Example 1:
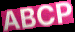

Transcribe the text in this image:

ABCP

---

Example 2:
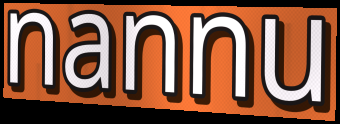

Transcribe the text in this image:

nannu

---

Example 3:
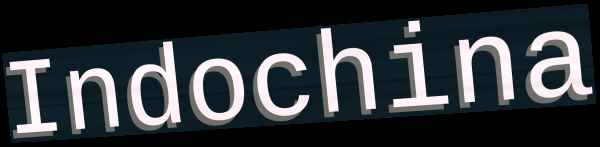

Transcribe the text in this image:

Indochina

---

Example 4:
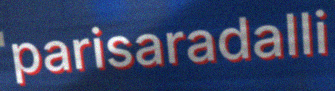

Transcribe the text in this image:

parisaradalli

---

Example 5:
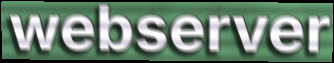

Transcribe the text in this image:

webserver